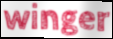
winger